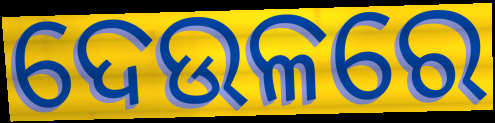
ଦେଉଳରେ